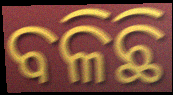
ବଳିଛି